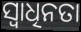
ସ୍ଵାଧିନତା